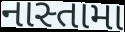
નાસ્તામા